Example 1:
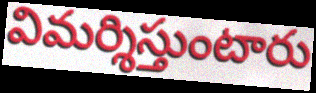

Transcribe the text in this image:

విమర్శిస్తుంటారు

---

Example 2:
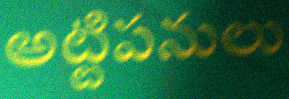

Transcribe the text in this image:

అట్టిపనులు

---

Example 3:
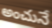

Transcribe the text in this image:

అంచునే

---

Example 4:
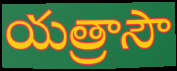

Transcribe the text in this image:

యత్రాసౌ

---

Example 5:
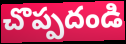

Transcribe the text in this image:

చొప్పదండి